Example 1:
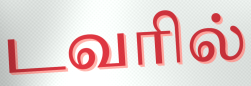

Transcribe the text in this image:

டவரில்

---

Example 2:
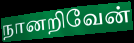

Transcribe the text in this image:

நானறிவேன்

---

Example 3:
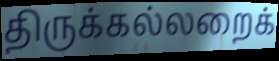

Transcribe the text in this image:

திருக்கல்லறைக்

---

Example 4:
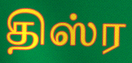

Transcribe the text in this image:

திஸ்ர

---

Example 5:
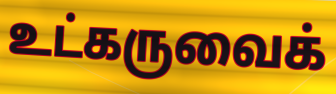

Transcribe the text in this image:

உட்கருவைக்